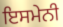
ਇਸਮੇਨੀ